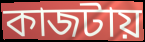
কাজটায়